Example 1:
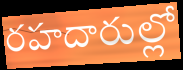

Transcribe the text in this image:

రహదారుల్లో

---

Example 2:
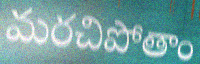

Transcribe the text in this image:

మరచిపోతాం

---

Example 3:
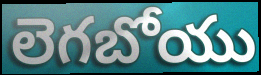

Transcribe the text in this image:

లెగబోయు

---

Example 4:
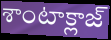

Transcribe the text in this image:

శాంటాక్లాజ్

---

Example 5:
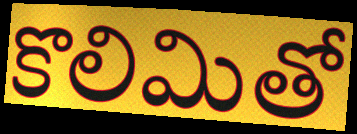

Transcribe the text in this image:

కొలిమితో